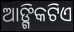
ଆଙ୍ଗିକଟିଏ